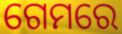
ଗେମରେ